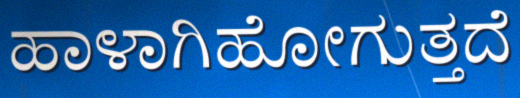
ಹಾಳಾಗಿಹೋಗುತ್ತದೆ